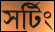
সর্টিং